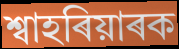
শ্বাহৰিয়াৰক